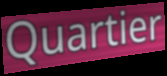
Quartier